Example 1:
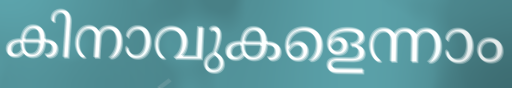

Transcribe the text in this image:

കിനാവുകളെന്നാം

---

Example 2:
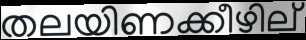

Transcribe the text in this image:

തലയിണക്കീഴില്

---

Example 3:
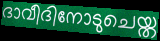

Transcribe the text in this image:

ദാവീദിനോടുചെയ്ത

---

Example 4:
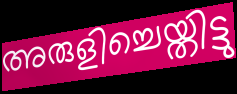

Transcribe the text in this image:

അരുളിച്ചെയ്തിട്ടു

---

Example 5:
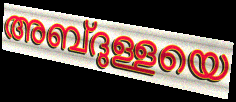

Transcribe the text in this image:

അബ്ദുള്ളയെ